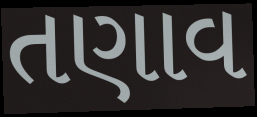
તણાવ